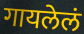
गायलेलं